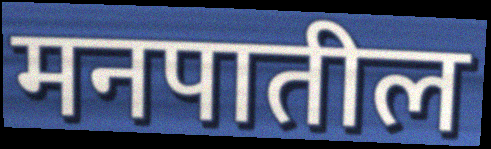
मनपातील